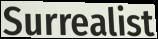
Surrealist